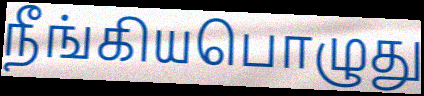
நீங்கியபொழுது